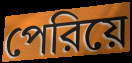
পেরিয়ে